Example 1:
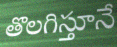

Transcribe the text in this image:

తొలగిస్తూనే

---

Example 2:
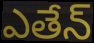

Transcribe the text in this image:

ఎతేన్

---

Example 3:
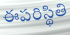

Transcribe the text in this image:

ఈపరిస్థితి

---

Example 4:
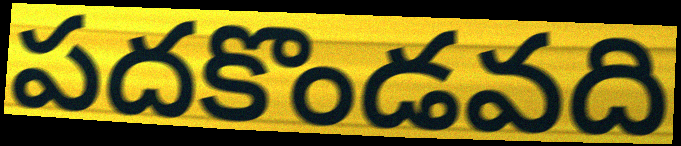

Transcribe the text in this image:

పదకొండవది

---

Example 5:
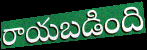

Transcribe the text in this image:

రాయబడింది